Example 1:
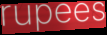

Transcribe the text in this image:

rupees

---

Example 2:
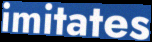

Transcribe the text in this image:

imitates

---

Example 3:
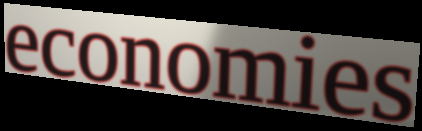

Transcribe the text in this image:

economies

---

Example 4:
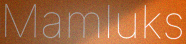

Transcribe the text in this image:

Mamluks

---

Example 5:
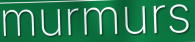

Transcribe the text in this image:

murmurs